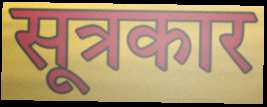
सूत्रकार